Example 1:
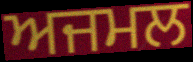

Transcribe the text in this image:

ਅਜਮਲ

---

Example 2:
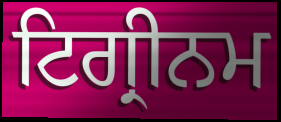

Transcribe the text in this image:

ਟਿਗ੍ਰੀਨਮ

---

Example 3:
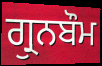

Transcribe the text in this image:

ਗ੍ਰੁਨਬੌਮ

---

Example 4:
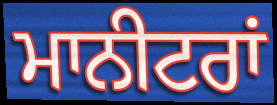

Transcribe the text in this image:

ਮਾਨੀਟਰਾਂ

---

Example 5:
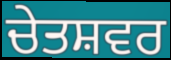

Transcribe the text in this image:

ਚੇਤਸ਼ਵਰ